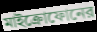
মাইক্রোফোনের